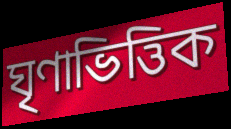
ঘৃণাভিত্তিক